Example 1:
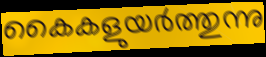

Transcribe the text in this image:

കൈകളുയർത്തുന്നു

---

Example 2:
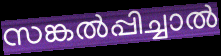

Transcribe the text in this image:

സങ്കൽപ്പിച്ചാൽ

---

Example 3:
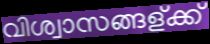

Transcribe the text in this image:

വിശ്വാസങ്ങള്ക്ക്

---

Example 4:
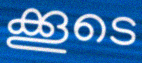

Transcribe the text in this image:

ക്കൂടെ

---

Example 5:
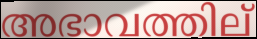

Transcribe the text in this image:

അഭാവത്തില്